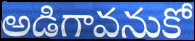
అడిగావనుకో